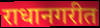
राधानगरीत